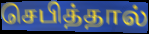
செபித்தால்